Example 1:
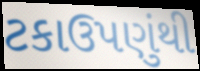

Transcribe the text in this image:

ટકાઉપણુંથી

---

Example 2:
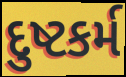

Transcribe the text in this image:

દુષ્ટકર્મ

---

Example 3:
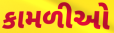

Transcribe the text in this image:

કામળીઓ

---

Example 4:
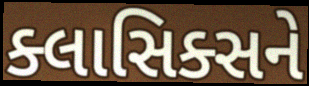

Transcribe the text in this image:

ક્લાસિક્સને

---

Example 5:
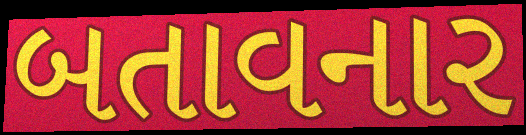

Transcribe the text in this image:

બતાવનાર